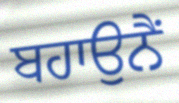
ਬਹਾਉਨੈਂ